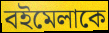
বইমেলাকে